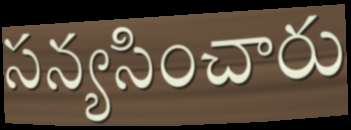
సన్యసించారు